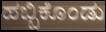
ಹಬ್ಬಿಕೊಂಡು